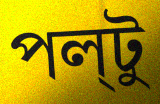
পল্‌টু